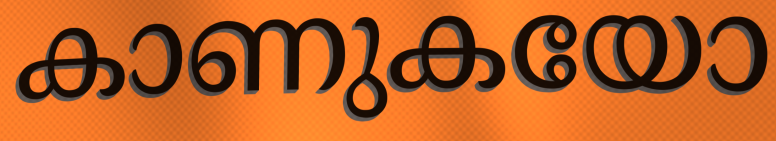
കാണുകയോ